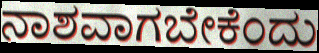
ನಾಶವಾಗಬೇಕೆಂದು